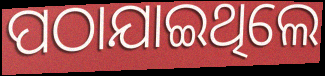
ପଠାଯାଇଥିଲେ